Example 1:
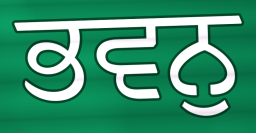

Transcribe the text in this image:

ਭਵਨੁ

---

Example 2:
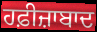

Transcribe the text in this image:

ਹਫ਼ੀਜ਼ਾਬਾਦ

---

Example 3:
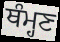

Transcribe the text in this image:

ਥੰਮ੍ਹਣ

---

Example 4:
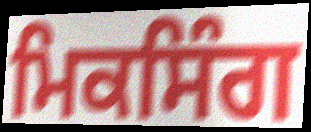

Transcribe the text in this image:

ਮਿਕਸਿੰਗ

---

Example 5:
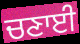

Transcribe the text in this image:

ਚਣਾਈ